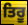
ਤਿਰੂ